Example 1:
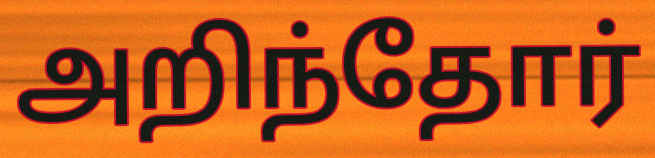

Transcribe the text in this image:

அறிந்தோர்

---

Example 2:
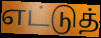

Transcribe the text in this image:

எட்டுத்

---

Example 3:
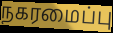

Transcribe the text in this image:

நகரமைப்பு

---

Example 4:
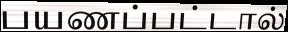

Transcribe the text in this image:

பயணப்பட்டால்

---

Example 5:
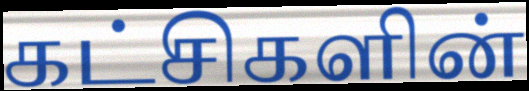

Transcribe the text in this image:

கட்சிகளின்